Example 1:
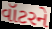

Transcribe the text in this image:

વૉટરને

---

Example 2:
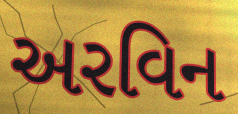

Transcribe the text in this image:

અરવિન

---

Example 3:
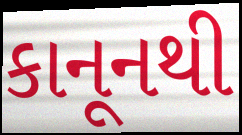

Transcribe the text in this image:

કાનૂનથી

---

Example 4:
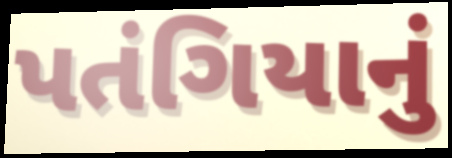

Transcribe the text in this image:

પતંગિયાનું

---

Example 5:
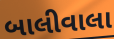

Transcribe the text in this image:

બાલીવાલા